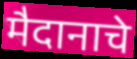
मैदानाचे